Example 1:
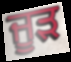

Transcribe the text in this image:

ਜੂੜ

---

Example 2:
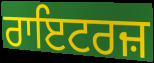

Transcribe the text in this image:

ਰਾਇਟਰਜ਼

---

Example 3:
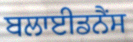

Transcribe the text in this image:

ਬਲਾਈਡਨੈਂਸ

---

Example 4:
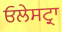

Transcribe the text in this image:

ਓਲੇਸਟ੍ਰਾ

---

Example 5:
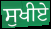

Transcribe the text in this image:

ਸੁਖੀਏ